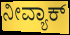
ನೀವ್ಯಾಕ್